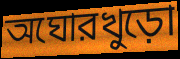
অঘোরখুড়ো